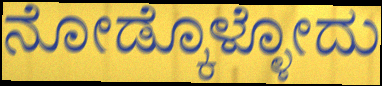
ನೋಡ್ಕೊಳ್ಳೋದು